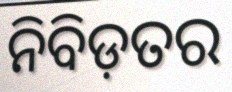
ନିବିଡ଼ତର